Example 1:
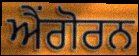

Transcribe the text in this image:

ਐਂਗੋਰਨ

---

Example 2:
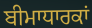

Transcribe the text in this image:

ਬੀਮਾਧਾਰਕਾਂ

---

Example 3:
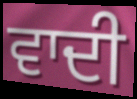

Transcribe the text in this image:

ਵਾਦੀ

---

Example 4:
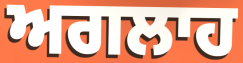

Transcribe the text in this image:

ਅਗਲਾਹ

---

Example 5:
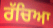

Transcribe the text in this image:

ਰੱਚਿਆ